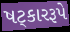
ષટ્કારરૂપે